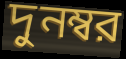
দুনম্বর